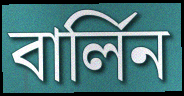
বার্লিন